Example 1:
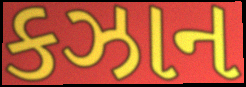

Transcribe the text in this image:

કઝાન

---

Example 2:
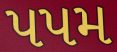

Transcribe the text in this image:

પપમ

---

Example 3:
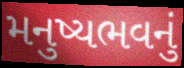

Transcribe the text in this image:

મનુષ્યભવનું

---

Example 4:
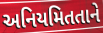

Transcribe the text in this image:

અનિયમિતતાને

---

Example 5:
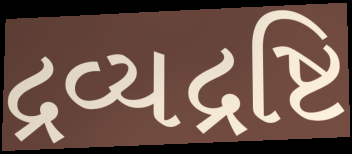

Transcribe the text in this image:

દ્રવ્યદ્રષ્ટિ